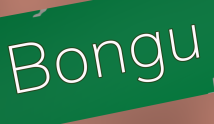
Bongu